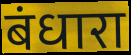
बंधारा